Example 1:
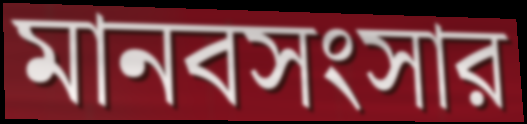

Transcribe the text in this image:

মানবসংসার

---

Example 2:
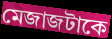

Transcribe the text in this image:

মেজাজটাকে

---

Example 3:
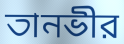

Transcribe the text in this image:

তানভীর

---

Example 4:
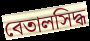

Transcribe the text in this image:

বেতালসিদ্ধ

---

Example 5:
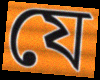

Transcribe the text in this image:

যে